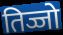
तिज्जो